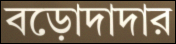
বড়োদাদার